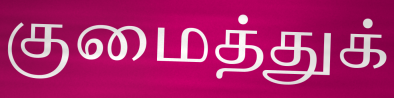
குமைத்துக்